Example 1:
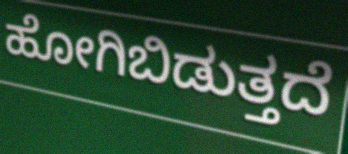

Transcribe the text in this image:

ಹೋಗಿಬಿಡುತ್ತದೆ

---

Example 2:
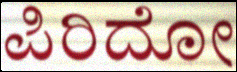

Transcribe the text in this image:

ಪಿರಿದೋ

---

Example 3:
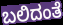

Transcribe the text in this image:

ಬಲಿದಂತೆ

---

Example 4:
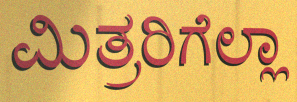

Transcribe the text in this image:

ಮಿತ್ರರಿಗೆಲ್ಲಾ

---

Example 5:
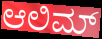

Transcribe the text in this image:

ಆಲಿಮ್